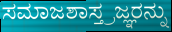
ಸಮಾಜಶಾಸ್ತ್ರಜ್ಞರನ್ನು